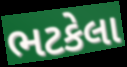
ભટકેલા